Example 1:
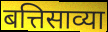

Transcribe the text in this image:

बत्तिसाव्या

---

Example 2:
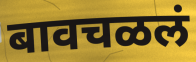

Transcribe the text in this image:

बावचळलं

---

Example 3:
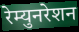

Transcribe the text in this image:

रेम्युनरेशन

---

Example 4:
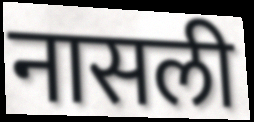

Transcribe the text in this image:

नासली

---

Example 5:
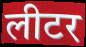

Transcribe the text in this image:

लीटर